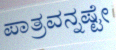
ಪಾತ್ರವನ್ನಷ್ಟೇ